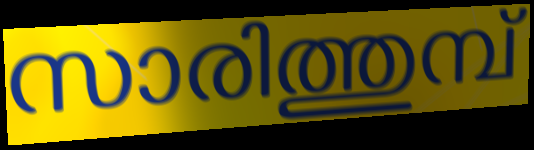
സാരിത്തുമ്പ്